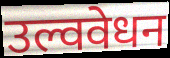
उल्ववेधन